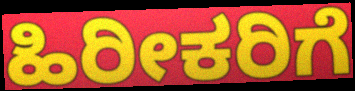
ಹಿರೀಕರಿಗೆ